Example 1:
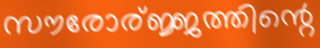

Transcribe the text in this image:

സൗരോര്ജ്ജത്തിന്റെ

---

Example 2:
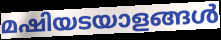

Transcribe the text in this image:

മഷിയടയാളങ്ങൾ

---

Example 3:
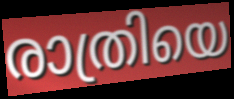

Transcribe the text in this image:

രാത്രിയെ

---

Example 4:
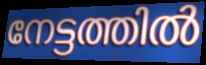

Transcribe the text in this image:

നേട്ടത്തിൽ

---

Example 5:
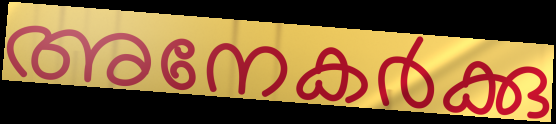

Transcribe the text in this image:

അനേകർക്കു